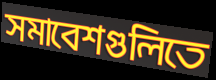
সমাবেশগুলিতে